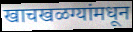
खाचखळग्यांमधून